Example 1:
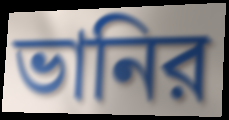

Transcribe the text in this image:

ভানির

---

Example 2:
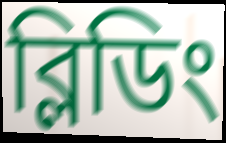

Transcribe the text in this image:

ব্লিডিং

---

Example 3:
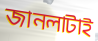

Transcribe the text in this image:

জানলাটাই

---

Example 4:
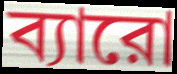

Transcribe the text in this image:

ব্যারো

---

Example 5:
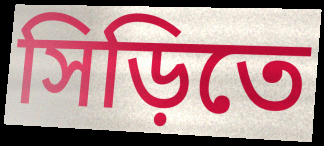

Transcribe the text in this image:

সিড়িতে